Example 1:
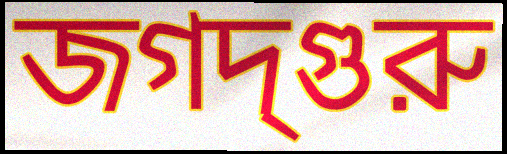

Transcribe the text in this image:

জগদ্‌গুরু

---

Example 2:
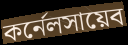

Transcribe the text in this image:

কর্নেলসায়েব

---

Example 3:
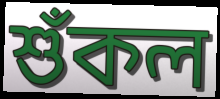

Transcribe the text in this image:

শুঁকল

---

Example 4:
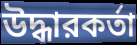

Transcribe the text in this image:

উদ্ধারকর্তা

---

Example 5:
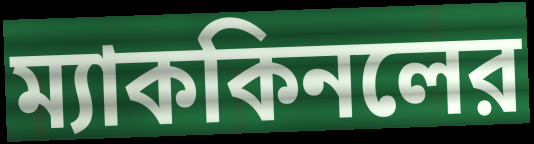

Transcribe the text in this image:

ম্যাককিনলের